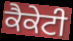
ਕੈਕੇਟੀ